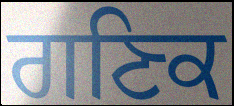
ਗਣਿਕ